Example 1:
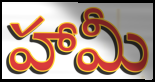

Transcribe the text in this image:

హామీ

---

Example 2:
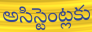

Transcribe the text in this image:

అసిస్టెంట్లకు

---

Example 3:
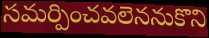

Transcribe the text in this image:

సమర్పించవలెననుకొని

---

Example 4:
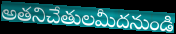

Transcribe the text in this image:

అతనిచేతులమీదనుండి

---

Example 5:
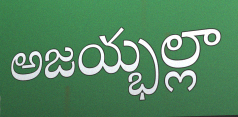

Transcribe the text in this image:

అజయ్భల్లా